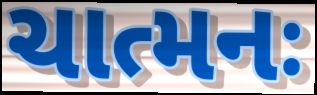
ચાત્મનઃ